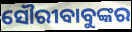
ସୌରୀବାବୁଙ୍କର